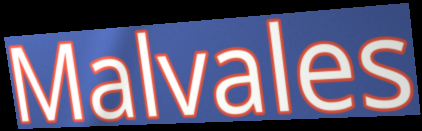
Malvales